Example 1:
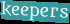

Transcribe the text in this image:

keepers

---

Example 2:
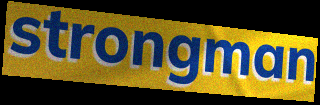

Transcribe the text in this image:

strongman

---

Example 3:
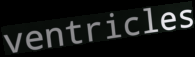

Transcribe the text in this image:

ventricles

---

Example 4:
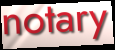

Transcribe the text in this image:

notary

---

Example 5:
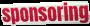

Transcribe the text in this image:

sponsoring